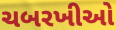
ચબરખીઓ